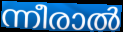
ന്നീരാൽ